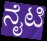
ನೈಟಿ